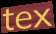
tex